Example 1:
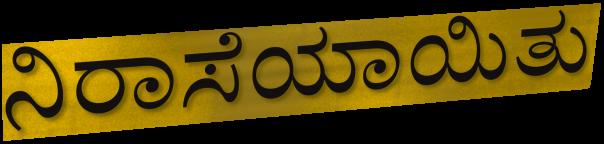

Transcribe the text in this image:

ನಿರಾಸೆಯಾಯಿತು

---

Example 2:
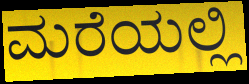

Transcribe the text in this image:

ಮರೆಯಲ್ಲಿ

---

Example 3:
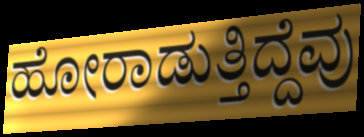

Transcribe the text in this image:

ಹೋರಾಡುತ್ತಿದ್ದೆವು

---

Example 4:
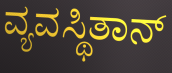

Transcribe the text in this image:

ವ್ಯವಸ್ಥಿತಾನ್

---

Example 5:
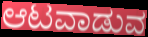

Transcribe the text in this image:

ಆಟವಾಡುವ